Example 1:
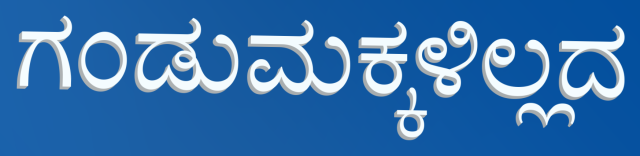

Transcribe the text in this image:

ಗಂಡುಮಕ್ಕಳಿಲ್ಲದ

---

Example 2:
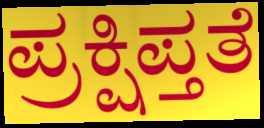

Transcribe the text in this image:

ಪ್ರಕ್ಷಿಪ್ತತೆ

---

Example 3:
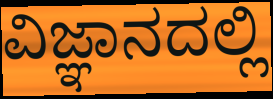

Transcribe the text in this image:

ವಿಜ್ಞಾನದಲ್ಲಿ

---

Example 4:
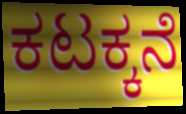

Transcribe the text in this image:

ಕಟಕ್ಕನೆ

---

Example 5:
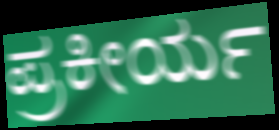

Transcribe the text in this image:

ಪ್ರಕೀರ್ಯ